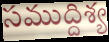
సముద్దిశ్య